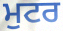
ਮੁਟਰ